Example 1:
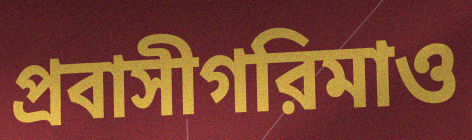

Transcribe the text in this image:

প্রবাসীগরিমাও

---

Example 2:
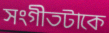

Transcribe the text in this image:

সংগীতটাকে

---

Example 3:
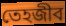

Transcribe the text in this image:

তেহজীব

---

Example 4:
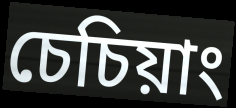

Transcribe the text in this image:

চেচিয়াং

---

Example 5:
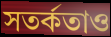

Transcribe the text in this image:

সতর্কতাও